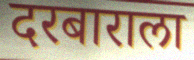
दरबाराला